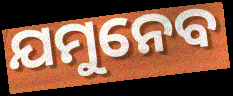
ଯମୁନେବ